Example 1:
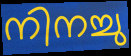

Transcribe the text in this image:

നിനച്ചു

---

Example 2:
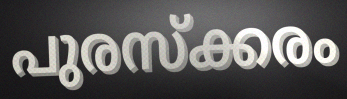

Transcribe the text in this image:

പുരസ്ക്കരം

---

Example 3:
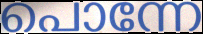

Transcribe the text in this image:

പൊന്നേ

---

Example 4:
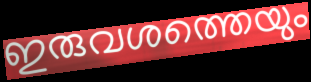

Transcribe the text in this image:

ഇരുവശത്തെയും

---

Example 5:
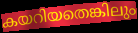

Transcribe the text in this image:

കയറിയതെങ്കിലും